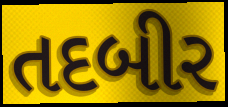
તદબીર